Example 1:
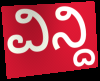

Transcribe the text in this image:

ವಿನ್ದಿ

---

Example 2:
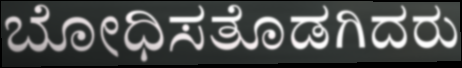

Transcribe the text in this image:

ಬೋಧಿಸತೊಡಗಿದರು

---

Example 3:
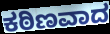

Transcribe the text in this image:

ಕಠಿಣವಾದ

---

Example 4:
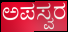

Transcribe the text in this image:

ಅಪಸ್ವರ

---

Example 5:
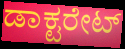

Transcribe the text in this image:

ಡಾಕ್ಟರೇಟ್